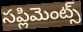
సప్లిమెంట్స్